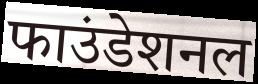
फाउंडेशनल